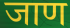
जाण